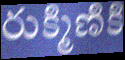
రుక్మిణికి